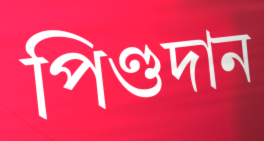
পিণ্ডদান